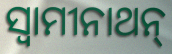
ସ୍ୱାମୀନାଥନ୍